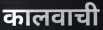
कालवाची